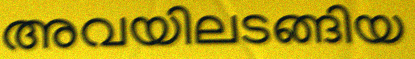
അവയിലടങ്ങിയ